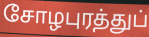
சோழபுரத்துப்